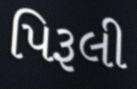
પિરૂલી